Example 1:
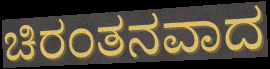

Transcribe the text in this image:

ಚಿರಂತನವಾದ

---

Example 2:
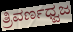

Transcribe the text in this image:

ತ್ರಿವರ್ಣಧ್ವಜ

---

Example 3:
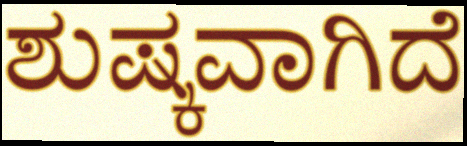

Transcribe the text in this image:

ಶುಷ್ಕವಾಗಿದೆ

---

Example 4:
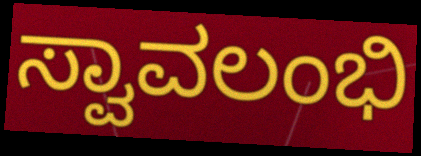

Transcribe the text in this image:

ಸ್ವಾವಲಂಭಿ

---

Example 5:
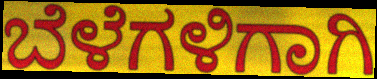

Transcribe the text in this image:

ಬೆಳೆಗಳಿಗಾಗಿ